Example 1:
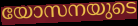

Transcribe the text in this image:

യോസനയുടെ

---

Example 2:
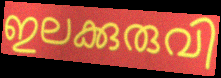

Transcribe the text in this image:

ഇലക്കുരുവി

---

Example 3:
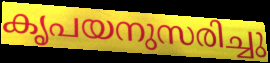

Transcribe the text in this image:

കൃപയനുസരിച്ചു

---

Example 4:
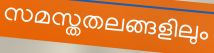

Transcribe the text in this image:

സമസ്തതലങ്ങളിലും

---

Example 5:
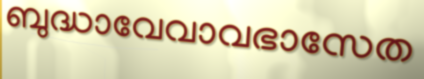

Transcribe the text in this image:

ബുദ്ധാവേവാവഭാസേത